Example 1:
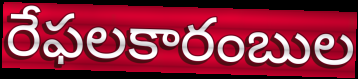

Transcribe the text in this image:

రేఫలకారంబుల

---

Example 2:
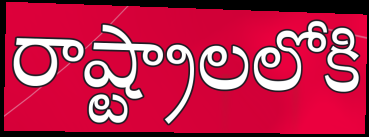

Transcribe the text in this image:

రాష్ట్రాలలోకి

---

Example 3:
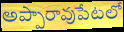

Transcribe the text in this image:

అప్పారావుపేటలో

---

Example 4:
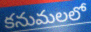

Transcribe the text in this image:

కనుమలలో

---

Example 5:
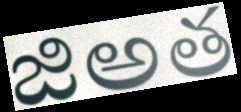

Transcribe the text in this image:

జిఅత